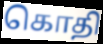
கொதி